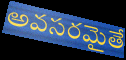
అవసరమైతే